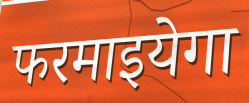
फरमाइयेगा